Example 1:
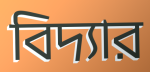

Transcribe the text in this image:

বিদ্যার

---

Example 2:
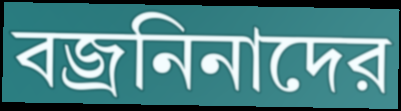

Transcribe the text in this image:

বজ্রনিনাদের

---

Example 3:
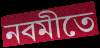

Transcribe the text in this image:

নবমীতে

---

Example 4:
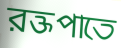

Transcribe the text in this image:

রক্তপাতে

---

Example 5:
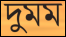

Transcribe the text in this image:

দুমম